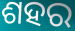
ଶହର